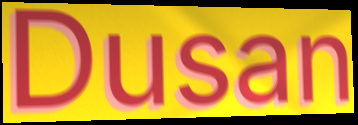
Dusan